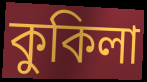
কুকিলা